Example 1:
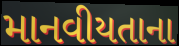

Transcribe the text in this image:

માનવીયતાના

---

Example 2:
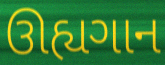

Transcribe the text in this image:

ઊહ્યગાન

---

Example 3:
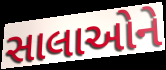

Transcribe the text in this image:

સાલાઓને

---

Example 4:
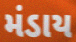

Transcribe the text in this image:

મંડાય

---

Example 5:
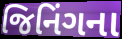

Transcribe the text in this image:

જિનિંગના